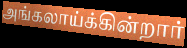
அங்கலாய்க்கின்றார்